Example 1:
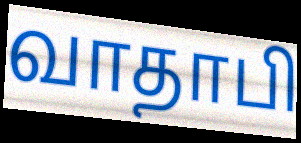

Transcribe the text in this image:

வாதாபி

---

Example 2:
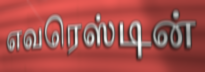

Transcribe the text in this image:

எவரெஸ்டின்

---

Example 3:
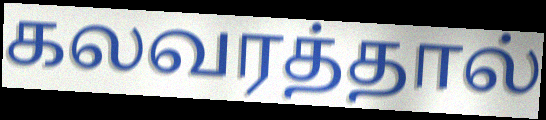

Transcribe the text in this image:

கலவரத்தால்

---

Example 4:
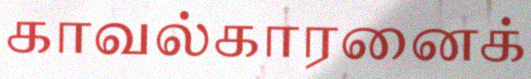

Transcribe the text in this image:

காவல்காரனைக்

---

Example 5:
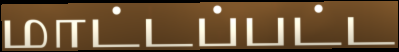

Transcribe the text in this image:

மாட்டப்பட்ட